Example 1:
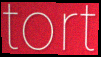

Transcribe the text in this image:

tort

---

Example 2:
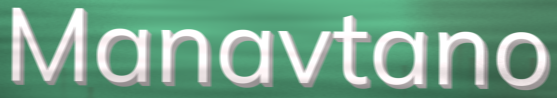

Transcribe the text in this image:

Manavtano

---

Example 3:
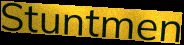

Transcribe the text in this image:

Stuntmen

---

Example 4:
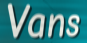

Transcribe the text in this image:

Vans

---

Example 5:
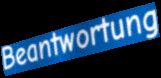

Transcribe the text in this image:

Beantwortung